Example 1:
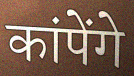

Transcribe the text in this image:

कांपेंगे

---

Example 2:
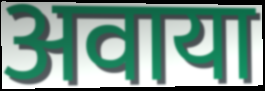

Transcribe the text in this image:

अवाया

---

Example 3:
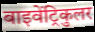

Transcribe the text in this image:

बाइवेंट्रिकुलर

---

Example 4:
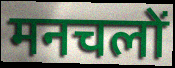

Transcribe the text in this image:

मनचलों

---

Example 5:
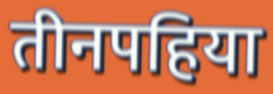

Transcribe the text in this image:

तीनपहिया